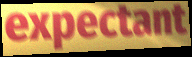
expectant